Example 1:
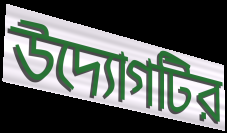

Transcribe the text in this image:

উদ্যোগটির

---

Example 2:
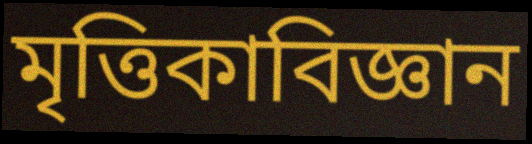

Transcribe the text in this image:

মৃত্তিকাবিজ্ঞান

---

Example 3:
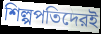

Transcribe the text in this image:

শিল্পপতিদেরই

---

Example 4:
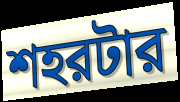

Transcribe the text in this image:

শহরটার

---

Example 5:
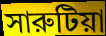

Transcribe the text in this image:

সারুটিয়া